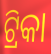
ଟ୍ରିକା